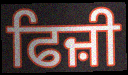
ਫਿਜ਼ੀ